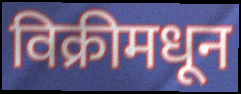
विक्रीमधून